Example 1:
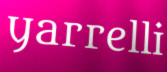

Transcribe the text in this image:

yarrelli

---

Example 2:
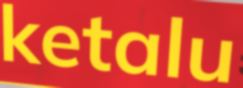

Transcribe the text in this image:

ketalu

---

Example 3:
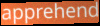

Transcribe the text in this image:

apprehend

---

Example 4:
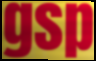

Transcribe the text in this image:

gsp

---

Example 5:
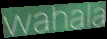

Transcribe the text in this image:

wahala